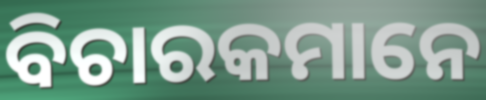
ବିଚାରକମାନେ